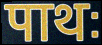
पाथः